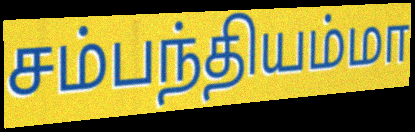
சம்பந்தியம்மா